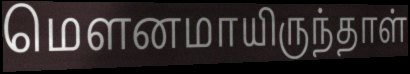
மௌனமாயிருந்தாள்